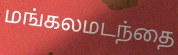
மங்கலமடந்தை